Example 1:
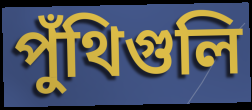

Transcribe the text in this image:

পুঁথিগুলি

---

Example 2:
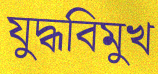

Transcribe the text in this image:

যুদ্ধবিমুখ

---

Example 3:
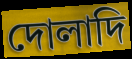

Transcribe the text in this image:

দোলাদি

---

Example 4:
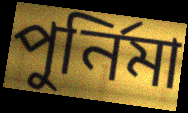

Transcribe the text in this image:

পুর্নিমা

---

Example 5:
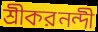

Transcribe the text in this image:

শ্রীকরনন্দী